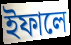
ইফালে